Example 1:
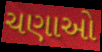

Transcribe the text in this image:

ચણાઓ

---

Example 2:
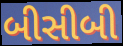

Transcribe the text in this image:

બીસીબી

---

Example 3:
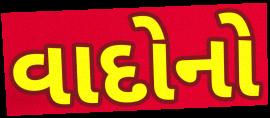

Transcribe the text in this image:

વાદોનો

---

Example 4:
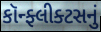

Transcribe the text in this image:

કૉન્ફ્લીક્ટસનું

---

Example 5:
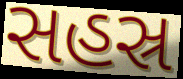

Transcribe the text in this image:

સહસ્ર